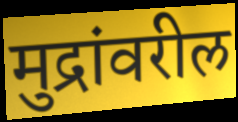
मुद्रांवरील